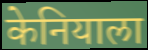
केनियाला